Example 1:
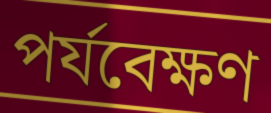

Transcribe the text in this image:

পৰ্যবেক্ষণ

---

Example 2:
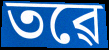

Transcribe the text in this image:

তৱে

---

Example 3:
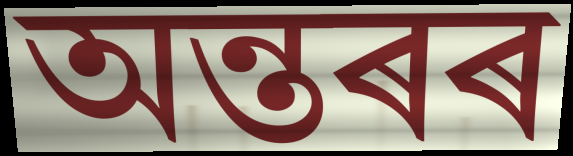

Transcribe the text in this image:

অন্তৰৰ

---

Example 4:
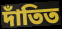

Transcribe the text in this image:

দাঁতিত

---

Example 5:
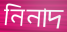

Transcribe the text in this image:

নিনাদ